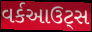
વર્કઆઉટ્સ